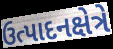
ઉત્પાદનક્ષેત્રે